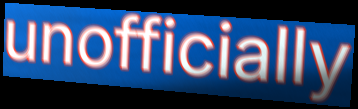
unofficially